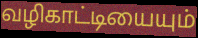
வழிகாட்டியையும்